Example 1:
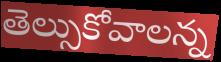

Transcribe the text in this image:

తెల్సుకోవాలన్న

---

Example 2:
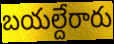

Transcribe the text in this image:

బయల్దేరారు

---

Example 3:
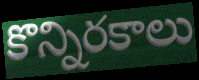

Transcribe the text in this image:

కొన్నిరకాలు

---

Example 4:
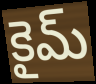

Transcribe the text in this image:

కైమ్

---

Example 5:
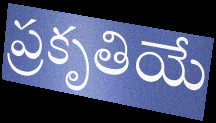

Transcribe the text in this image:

ప్రకృతియే